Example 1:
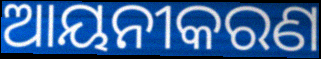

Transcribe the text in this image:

ଆୟନୀକରଣ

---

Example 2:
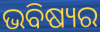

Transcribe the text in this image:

ଭବିଷ୍ୟର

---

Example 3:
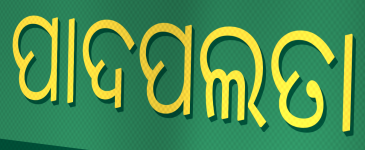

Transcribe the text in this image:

ପାଦପଲତା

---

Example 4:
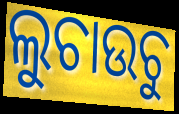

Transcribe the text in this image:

ଲୁଚାଉଚୁ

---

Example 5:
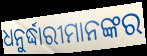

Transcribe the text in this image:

ଧନୁର୍ଦ୍ଧାରୀମାନଙ୍କର